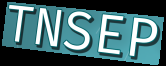
TNSEP